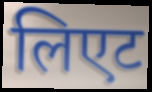
लिएट